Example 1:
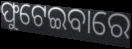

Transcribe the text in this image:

ଫୁଟେଇବାରେ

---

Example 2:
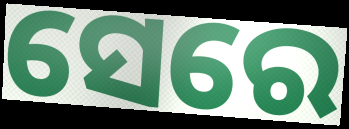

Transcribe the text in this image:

ସେରେ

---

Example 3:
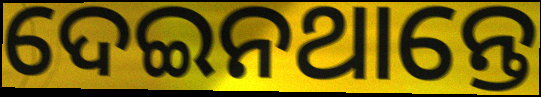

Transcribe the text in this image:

ଦେଇନଥାନ୍ତେ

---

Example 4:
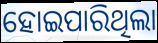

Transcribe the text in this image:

ହୋଇପାରିଥିଲା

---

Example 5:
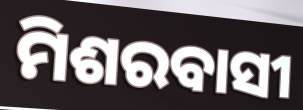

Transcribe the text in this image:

ମିଶରବାସୀ